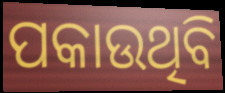
ପକାଉଥିବି